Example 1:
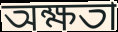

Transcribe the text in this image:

অক্ষতা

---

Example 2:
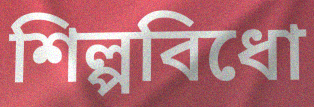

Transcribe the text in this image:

শিল্পবিধো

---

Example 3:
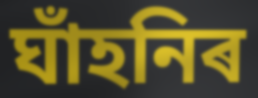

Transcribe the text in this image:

ঘাঁহনিৰ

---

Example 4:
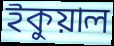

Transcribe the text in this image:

ইকুয়াল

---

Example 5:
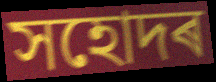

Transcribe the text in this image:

সহোদৰ